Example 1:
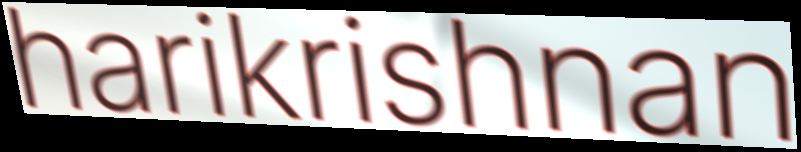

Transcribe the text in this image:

harikrishnan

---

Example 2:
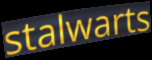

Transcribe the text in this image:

stalwarts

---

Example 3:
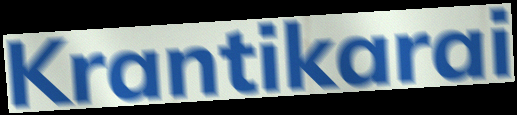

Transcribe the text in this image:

Krantikarai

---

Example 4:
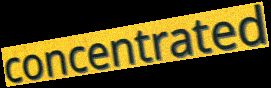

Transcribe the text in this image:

concentrated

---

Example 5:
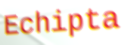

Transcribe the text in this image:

Echipta